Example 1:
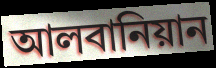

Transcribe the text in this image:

আলবানিয়ান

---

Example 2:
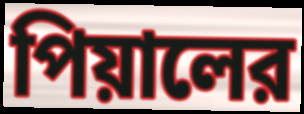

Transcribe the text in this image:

পিয়ালের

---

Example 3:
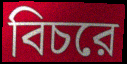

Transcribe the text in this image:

বিচরে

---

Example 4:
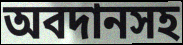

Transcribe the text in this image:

অবদানসহ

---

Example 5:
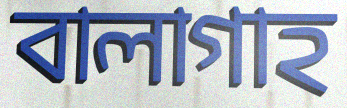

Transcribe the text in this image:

বালাগাহ